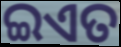
ଇଏତ